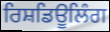
ਰਿਸ਼ਡਿਊਲਿੰਗ